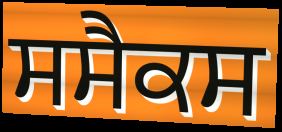
ਸਸੈਕਸ